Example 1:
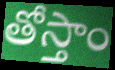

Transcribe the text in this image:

తోస్తాం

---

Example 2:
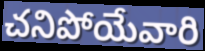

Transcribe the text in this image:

చనిపోయేవారి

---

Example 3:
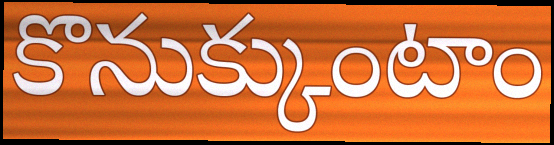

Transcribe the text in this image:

కొనుక్కుంటాం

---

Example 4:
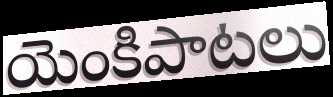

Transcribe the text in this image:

యెంకిపాటలు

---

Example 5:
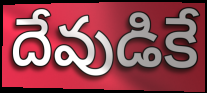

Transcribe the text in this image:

దేవుడికే